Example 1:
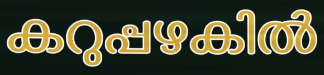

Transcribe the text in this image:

കറുപ്പഴകിൽ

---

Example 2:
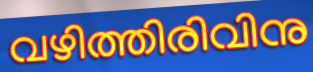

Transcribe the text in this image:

വഴിത്തിരിവിനു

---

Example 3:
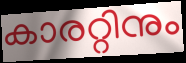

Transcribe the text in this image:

കാരറ്റിനും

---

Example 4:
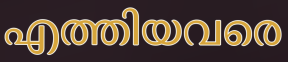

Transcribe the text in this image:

എത്തിയവരെ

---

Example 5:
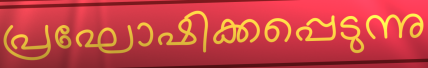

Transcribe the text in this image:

പ്രഘോഷിക്കപ്പെടുന്നു